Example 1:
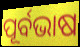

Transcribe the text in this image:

ପୂର୍ବଭାଷ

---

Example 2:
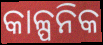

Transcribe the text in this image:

କାଳ୍ପନିକ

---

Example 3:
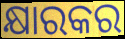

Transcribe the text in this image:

କ୍ଷାରକର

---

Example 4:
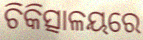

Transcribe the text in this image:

ଚିକିତ୍ସାଳୟରେ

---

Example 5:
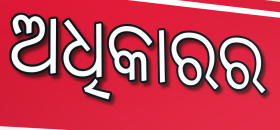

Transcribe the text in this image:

ଅଧିକାରର